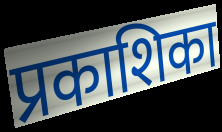
प्रकाशिका